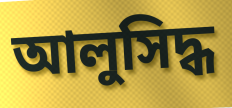
আলুসিদ্ধ